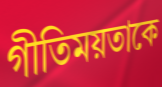
গীতিময়তাকে